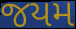
જયમ